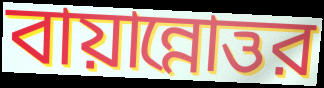
বায়ান্নোত্তর